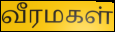
வீரமகள்